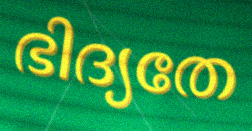
ഭിദ്യതേ